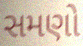
સમણો